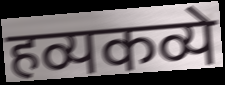
हव्यकव्ये